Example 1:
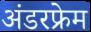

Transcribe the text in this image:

अंडरफ्रेम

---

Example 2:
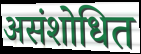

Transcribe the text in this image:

असंशोधित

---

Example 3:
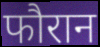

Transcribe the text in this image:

फौरान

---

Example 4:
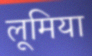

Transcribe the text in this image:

लूमिया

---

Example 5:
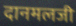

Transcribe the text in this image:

दानमलजी